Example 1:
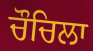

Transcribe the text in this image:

ਚੌਚਿਲਾ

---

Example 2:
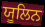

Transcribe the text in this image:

ਯੂਲਿਨ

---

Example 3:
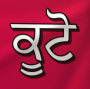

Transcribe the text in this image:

ਕੂਟੋ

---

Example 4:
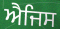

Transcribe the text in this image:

ਐਜਿਸ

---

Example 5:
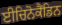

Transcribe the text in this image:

ਈਚਿਨੋਕੈਂਡਿਨ